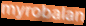
myrobalan